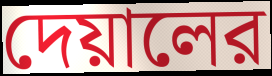
দেয়ালের